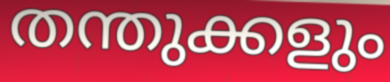
തന്തുക്കളും